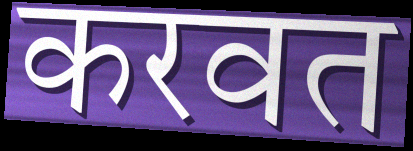
करवत